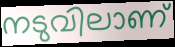
നടുവിലാണ്